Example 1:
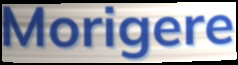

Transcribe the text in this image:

Morigere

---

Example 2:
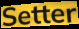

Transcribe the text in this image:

Setter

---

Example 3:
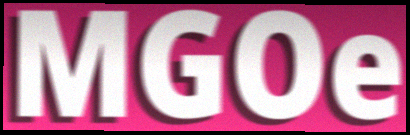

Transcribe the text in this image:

MGOe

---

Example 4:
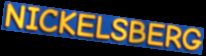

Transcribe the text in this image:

NICKELSBERG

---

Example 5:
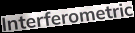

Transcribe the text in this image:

Interferometric